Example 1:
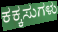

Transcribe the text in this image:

ಕಕ್ಕಸುಗಳು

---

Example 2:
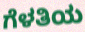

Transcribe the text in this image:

ಗೆಳತಿಯ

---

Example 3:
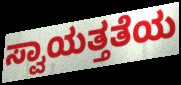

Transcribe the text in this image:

ಸ್ವಾಯತ್ತತೆಯ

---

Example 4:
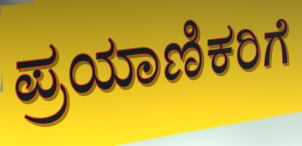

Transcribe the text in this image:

ಪ್ರಯಾಣಿಕರಿಗೆ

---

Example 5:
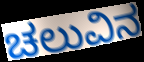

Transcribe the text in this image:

ಚಲುವಿನ